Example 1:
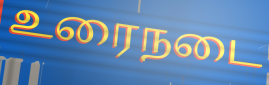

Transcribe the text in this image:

உரைநடை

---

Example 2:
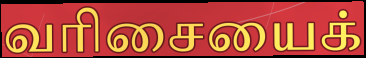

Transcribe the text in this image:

வரிசையைக்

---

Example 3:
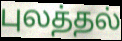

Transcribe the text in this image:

புலத்தல்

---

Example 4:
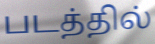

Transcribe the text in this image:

படத்தில்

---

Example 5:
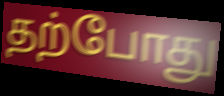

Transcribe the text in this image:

தற்போது